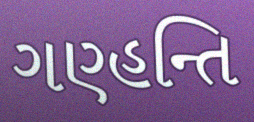
ગણ્હન્તિ